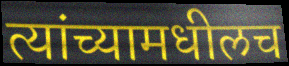
त्यांच्यामधीलच